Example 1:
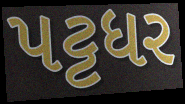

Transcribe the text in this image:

પટ્ટધર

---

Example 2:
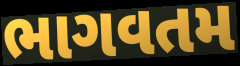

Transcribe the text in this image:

ભાગવતમ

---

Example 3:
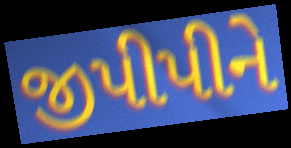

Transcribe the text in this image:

જીપીપીને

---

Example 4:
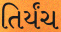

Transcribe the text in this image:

તિર્યંચ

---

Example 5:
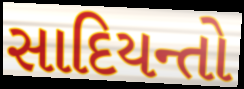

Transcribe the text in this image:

સાદિયન્તો